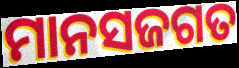
ମାନସଜଗତ